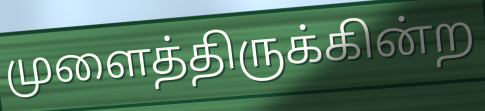
முளைத்திருக்கின்ற